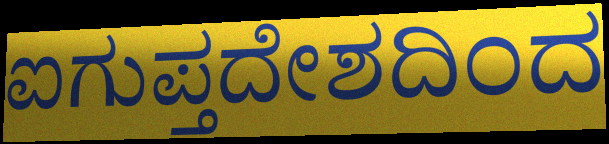
ಐಗುಪ್ತದೇಶದಿಂದ